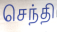
செந்தி